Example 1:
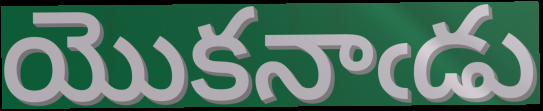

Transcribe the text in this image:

యొకనాఁడు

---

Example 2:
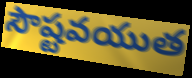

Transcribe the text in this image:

సౌష్టవయుత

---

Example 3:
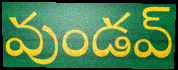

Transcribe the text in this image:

వుండవ్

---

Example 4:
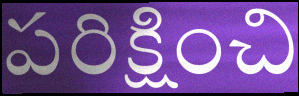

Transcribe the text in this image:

పరిక్షించి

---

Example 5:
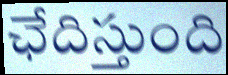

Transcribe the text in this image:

ఛేదిస్తుంది